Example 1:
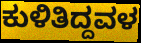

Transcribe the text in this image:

ಕುಳಿತಿದ್ದವಳ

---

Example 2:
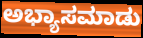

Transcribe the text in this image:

ಅಭ್ಯಾಸಮಾಡು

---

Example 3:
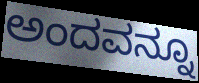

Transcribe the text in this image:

ಅಂದವನ್ನೂ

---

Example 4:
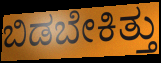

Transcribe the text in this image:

ಬಿಡಬೇಕಿತ್ತು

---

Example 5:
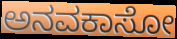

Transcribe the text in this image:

ಅನವಕಾಸೋ